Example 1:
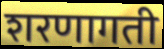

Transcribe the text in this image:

शरणागती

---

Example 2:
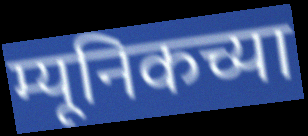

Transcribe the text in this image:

म्यूनिकच्या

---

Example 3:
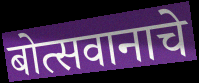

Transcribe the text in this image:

बोत्सवानाचे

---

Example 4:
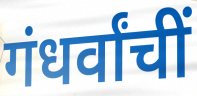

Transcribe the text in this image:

गंधर्वांचीं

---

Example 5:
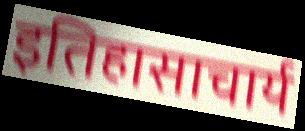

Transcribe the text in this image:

इतिहासाचार्य